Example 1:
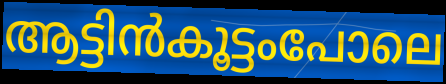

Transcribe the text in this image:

ആട്ടിൻകൂട്ടംപോലെ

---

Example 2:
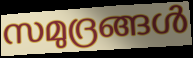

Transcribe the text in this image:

സമുദ്രങ്ങൾ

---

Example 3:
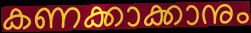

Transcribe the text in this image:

കണക്കാക്കാനും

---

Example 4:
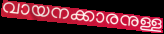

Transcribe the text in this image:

വായനക്കാരനുള്ള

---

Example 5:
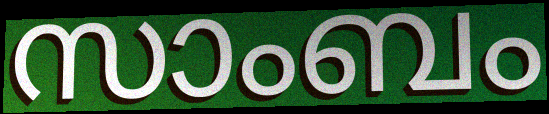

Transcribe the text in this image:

സാംബം